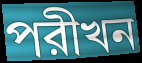
পরীখন